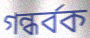
গন্ধৰ্বক